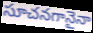
సూచనగానైనా